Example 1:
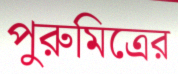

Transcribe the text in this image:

পুরুমিত্রের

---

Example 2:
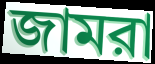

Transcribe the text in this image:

জামরা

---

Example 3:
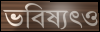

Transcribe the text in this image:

ভবিষ্যৎও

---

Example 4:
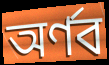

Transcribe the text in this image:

অর্ণব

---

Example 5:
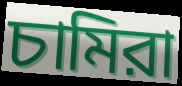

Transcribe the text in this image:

চামিরা